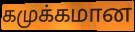
கமுக்கமான